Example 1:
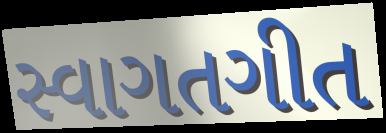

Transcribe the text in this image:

સ્વાગતગીત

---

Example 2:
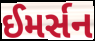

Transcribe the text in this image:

ઈમર્સન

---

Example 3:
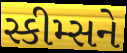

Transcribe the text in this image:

સ્કીમ્સને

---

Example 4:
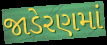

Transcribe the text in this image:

જાડેરણમાં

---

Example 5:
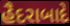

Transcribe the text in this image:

હૈદરાબાદે